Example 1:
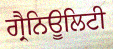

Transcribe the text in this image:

ਗ੍ਰੈਨਿਊਲਿਟੀ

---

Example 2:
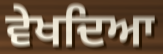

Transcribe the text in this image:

ਵੇਖਦਿਆ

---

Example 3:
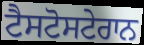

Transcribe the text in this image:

ਟੈਸਟੋਸਟੇਰਾਨ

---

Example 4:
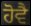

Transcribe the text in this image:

ਹੋਵੈ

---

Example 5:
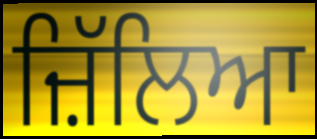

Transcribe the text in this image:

ਜ਼ਿੱਲਿਆ